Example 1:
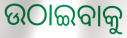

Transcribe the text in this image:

ଉଠାଇବାକୁ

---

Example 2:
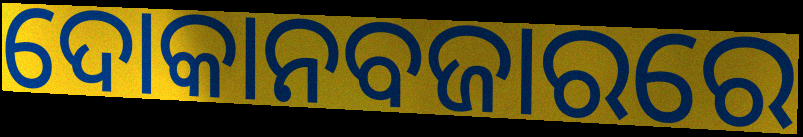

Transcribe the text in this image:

ଦୋକାନବଜାରରେ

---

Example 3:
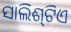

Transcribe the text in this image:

ସାଲିଶ୍‌ଟିଏ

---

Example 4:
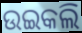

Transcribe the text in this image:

ଉଇକଲି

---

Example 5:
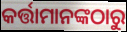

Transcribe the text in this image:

କର୍ତ୍ତାମାନଙ୍କଠାରୁ